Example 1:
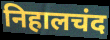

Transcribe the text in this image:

निहालचंद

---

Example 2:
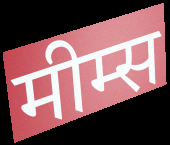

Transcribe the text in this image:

मीम्‍स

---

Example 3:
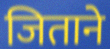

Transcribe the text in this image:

जिताने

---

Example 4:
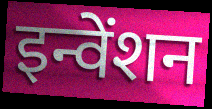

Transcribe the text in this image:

इन्वेंशन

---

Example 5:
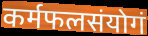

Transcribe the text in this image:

कर्मफलसंयोगं